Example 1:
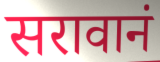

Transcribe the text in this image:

सरावानं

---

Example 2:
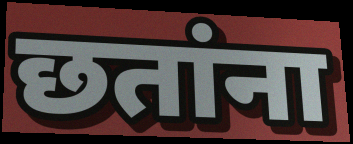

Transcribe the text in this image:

छतांना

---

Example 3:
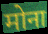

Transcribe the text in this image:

मोना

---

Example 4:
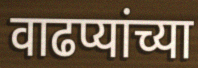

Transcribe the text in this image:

वाढप्यांच्या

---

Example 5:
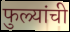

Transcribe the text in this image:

फुल्यांची